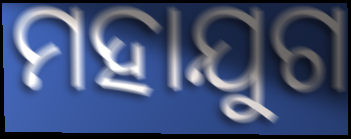
ମହାଯୁଗ